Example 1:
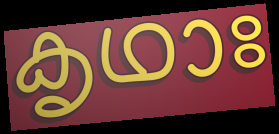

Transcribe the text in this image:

കൃഥാഃ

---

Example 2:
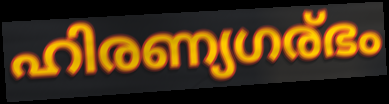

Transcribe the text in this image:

ഹിരണ്യഗര്ഭം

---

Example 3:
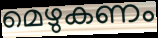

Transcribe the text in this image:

മെഴുകണം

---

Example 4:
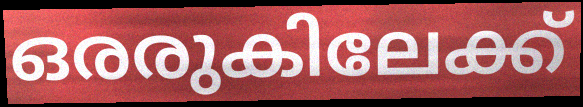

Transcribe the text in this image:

ഒരരുകിലേക്ക്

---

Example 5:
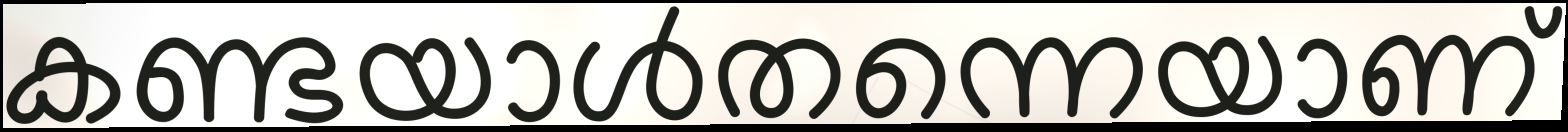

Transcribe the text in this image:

കണ്ടയാൾതന്നെയാണ്